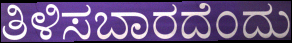
ತಿಳಿಸಬಾರದೆಂದು